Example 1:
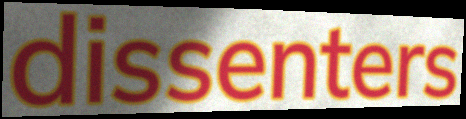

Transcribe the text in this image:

dissenters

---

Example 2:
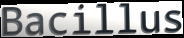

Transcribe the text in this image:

Bacillus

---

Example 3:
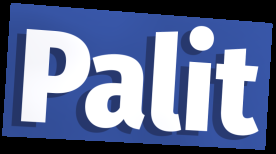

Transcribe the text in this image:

Palit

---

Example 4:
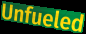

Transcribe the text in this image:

Unfueled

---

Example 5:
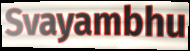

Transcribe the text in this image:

Svayambhu